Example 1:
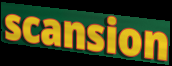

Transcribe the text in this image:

scansion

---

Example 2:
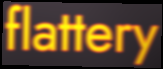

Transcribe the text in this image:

flattery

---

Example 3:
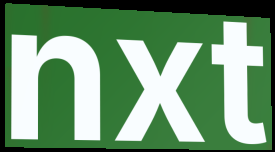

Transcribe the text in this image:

nxt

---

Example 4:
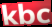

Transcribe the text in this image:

kbc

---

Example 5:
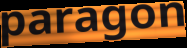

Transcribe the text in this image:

paragon